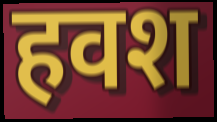
हवश